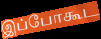
இப்போகூட